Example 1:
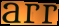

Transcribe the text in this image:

arr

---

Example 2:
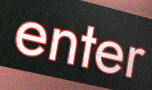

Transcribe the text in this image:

enter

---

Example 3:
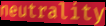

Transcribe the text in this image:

neutrality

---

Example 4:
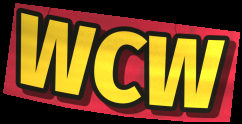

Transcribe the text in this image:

WCW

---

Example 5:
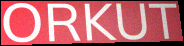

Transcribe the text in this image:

ORKUT